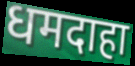
धमदाहा